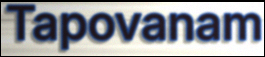
Tapovanam